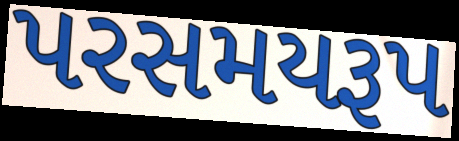
પરસમયરૂપ